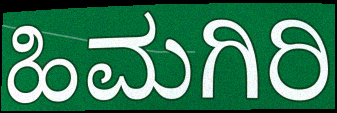
ಹಿಮಗಿರಿ